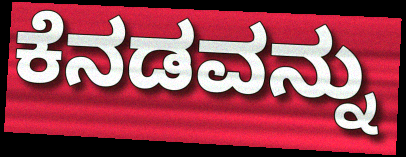
ಕೆನಡವನ್ನು